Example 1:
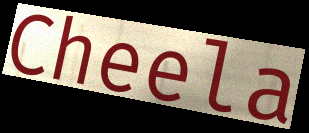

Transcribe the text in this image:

Cheela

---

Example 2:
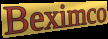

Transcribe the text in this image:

Beximco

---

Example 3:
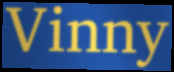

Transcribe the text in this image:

Vinny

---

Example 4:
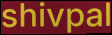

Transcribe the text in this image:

shivpal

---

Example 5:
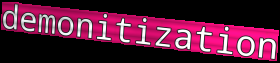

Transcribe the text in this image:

demonitization